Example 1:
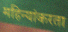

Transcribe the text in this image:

महिन्यांकरता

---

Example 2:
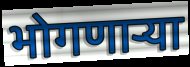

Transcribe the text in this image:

भोगणाऱ्या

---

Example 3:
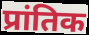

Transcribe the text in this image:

प्रांतिक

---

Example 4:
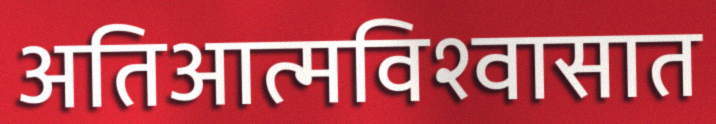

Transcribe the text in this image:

अतिआत्मविश्वासात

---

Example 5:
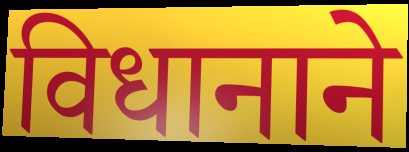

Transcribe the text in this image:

विधानाने